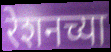
रेशनच्या